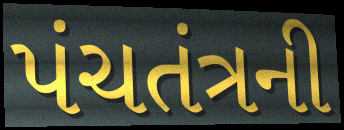
પંચતંત્રની